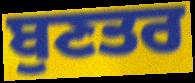
ਬੁਣਤਰ